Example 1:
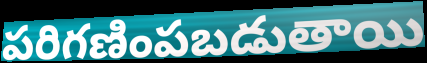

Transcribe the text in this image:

పరిగణింపబడుతాయి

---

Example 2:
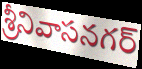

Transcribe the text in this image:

శ్రీనివాసనగర్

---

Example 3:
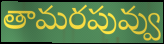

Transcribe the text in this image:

తామరపువ్వు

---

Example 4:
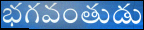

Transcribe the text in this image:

భగవంతుడు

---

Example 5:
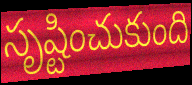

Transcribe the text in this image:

సృష్టించుకుంది